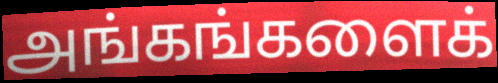
அங்கங்களைக்